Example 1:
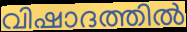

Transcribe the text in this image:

വിഷാദത്തിൽ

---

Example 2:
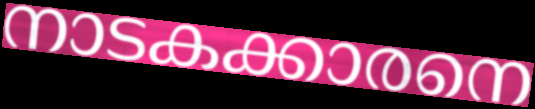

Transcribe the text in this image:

നാടകക്കാരനെ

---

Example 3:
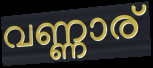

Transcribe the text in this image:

വണ്ണാര്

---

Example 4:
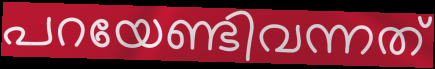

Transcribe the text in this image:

പറയേണ്ടിവന്നത്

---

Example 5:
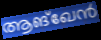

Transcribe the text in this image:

ആങ്ഖേൻ